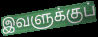
இவளுக்குப்